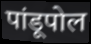
पांडूपोल